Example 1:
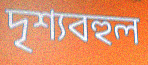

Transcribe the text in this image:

দৃশ্যবহুল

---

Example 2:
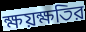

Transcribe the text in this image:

ক্ষয়ক্ষতির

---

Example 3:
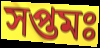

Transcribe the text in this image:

সপ্তমঃ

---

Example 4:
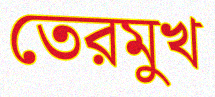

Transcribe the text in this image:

তেরমুখ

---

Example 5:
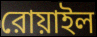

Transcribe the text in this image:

রোয়াইল